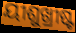
ୟୀଶୁଖ୍ରୀଷ୍ଟ